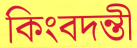
কিংবদন্তী